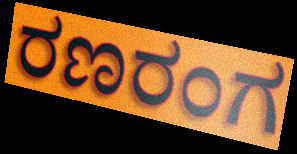
ರಣರಂಗ